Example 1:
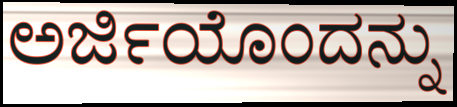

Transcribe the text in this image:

ಅರ್ಜಿಯೊಂದನ್ನು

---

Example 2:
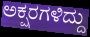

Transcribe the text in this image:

ಅಕ್ಷರಗಳಿದ್ದು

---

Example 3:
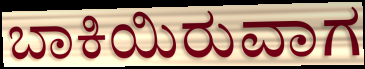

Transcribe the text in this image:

ಬಾಕಿಯಿರುವಾಗ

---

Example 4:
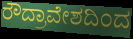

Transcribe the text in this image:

ರೌದ್ರಾವೇಶದಿಂದ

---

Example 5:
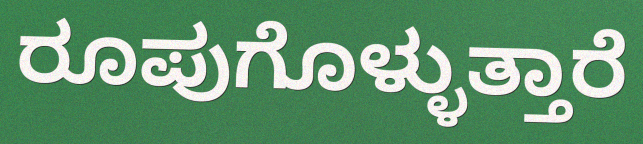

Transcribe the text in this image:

ರೂಪುಗೊಳ್ಳುತ್ತಾರೆ